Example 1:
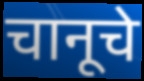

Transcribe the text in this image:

चानूचे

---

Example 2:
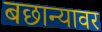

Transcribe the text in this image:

बछान्यावर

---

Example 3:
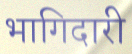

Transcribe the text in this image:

भागिदारी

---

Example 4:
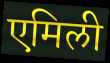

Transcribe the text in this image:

एमिली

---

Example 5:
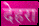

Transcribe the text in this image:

देहरा